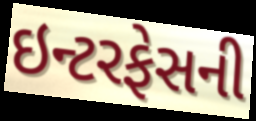
ઇન્ટરફેસની